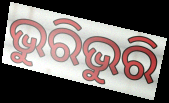
ଭୁରିଭୁରି